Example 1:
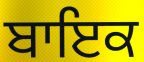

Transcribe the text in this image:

ਬਾਇਕ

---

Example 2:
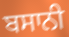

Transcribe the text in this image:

ਬਸਾਨੀ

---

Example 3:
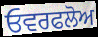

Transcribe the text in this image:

ਓਵਰਫਲੋਅ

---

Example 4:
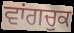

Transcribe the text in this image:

ਵਾਂਗਚੁਕ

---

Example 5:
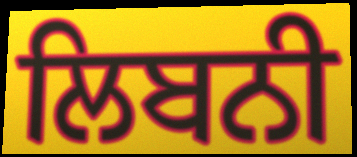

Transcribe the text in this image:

ਲਿਬਨੀ